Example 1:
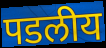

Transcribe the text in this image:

पडलीय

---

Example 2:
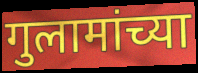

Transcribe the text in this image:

गुलामांच्या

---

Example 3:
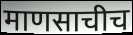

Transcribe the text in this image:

माणसाचीच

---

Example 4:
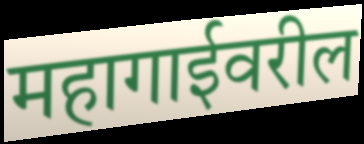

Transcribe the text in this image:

महागाईवरील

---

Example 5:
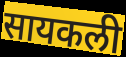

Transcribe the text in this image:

सायकली